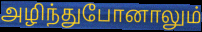
அழிந்துபோனாலும்